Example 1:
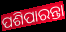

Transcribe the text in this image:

ପଶିପାରନ୍ତା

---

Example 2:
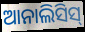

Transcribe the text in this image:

ଆନାଲିସିସ୍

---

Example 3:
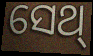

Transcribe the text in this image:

ସେଥ୍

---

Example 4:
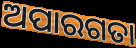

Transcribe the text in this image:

ଅପାରଗତା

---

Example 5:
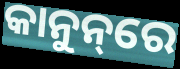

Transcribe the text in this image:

କାନୁନ୍‌ରେ